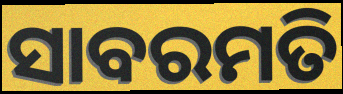
ସାବରମତି